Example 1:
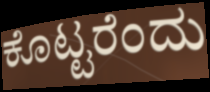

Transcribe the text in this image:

ಕೊಟ್ಟರೆಂದು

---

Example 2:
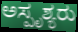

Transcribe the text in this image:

ಅಸ್ಪೃಶ್ಯರು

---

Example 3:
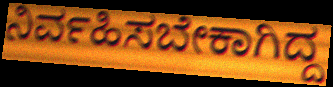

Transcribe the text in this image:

ನಿರ್ವಹಿಸಬೇಕಾಗಿದ್ದ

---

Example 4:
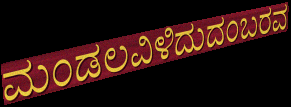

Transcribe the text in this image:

ಮಂಡಲವಿಳಿದುದಂಬರವ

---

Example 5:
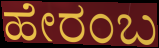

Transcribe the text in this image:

ಹೇರಂಬ